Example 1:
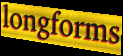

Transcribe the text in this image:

longforms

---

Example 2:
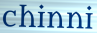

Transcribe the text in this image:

chinni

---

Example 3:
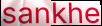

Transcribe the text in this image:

sankhe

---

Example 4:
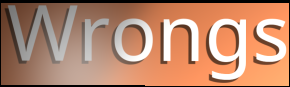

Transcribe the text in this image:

Wrongs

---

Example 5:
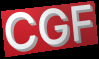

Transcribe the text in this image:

CGF